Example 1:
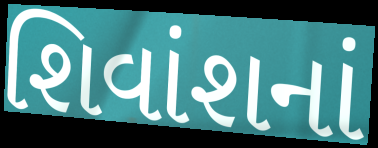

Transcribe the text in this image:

શિવાંશનાં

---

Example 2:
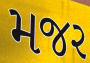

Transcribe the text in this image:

મજર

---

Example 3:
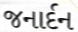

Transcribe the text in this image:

જનાર્દન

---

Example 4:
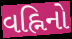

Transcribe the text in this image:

વહ્નિનો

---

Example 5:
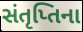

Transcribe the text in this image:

સંતૃપ્તિના